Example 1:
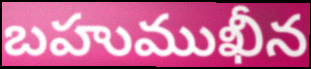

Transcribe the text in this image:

బహుముఖీన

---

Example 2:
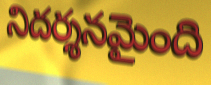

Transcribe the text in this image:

నిదర్శనమైంది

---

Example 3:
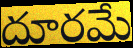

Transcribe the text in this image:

దూరమే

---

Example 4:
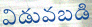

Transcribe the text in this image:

విడువబడి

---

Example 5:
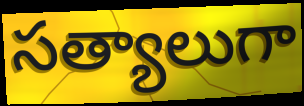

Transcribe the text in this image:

సత్యాలుగా